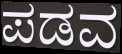
ಪಡವ